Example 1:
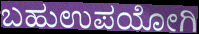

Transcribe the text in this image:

ಬಹುಉಪಯೋಗಿ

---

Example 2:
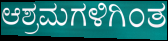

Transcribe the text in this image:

ಆಶ್ರಮಗಳಿಗಿಂತ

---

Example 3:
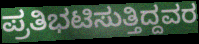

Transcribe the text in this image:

ಪ್ರತಿಭಟಿಸುತ್ತಿದ್ದವರ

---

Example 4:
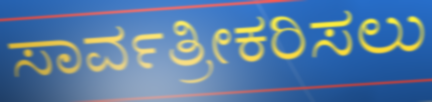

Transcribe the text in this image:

ಸಾರ್ವತ್ರೀಕರಿಸಲು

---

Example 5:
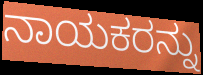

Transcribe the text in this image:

ನಾಯಕರನ್ನು